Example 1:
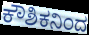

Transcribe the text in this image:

ಕೌಶಿಕನಿಂದ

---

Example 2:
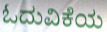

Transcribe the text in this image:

ಓದುವಿಕೆಯ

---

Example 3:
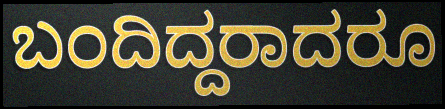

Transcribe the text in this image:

ಬಂದಿದ್ದರಾದರೂ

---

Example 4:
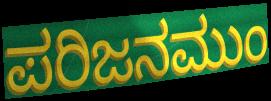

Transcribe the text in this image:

ಪರಿಜನಮುಂ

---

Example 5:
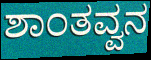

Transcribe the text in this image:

ಶಾಂತವ್ವನ